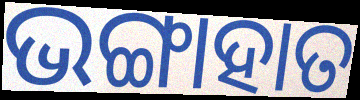
ଭଙ୍ଗାହାତ